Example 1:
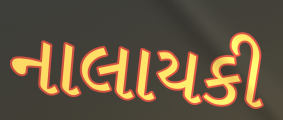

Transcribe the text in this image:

નાલાયકી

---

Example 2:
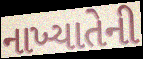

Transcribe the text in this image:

નાખ્યાતેની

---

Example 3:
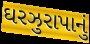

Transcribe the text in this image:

ઘરઝુરાપાનું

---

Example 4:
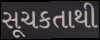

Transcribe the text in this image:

સૂચકતાથી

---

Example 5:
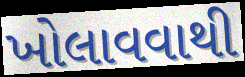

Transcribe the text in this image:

ખોલાવવાથી